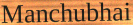
Manchubhai